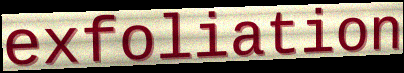
exfoliation